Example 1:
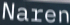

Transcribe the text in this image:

Naren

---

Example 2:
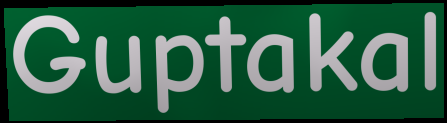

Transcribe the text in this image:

Guptakal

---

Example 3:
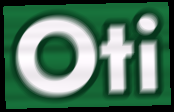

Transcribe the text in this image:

Oti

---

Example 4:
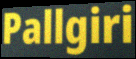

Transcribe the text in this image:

Pallgiri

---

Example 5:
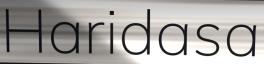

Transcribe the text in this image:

Haridasa